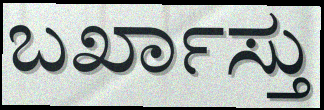
ಬರ್ಖಾಸ್ತು